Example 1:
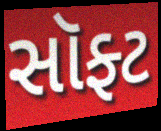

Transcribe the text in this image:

સૉફ્ટ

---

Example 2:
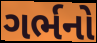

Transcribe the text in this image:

ગર્ભનો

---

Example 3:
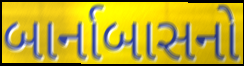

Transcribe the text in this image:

બાર્નાબાસનો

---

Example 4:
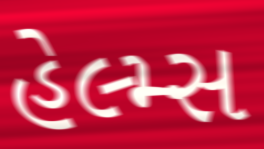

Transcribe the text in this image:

હેલ્મ્સ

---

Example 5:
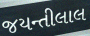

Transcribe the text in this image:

જયન્તીલાલ